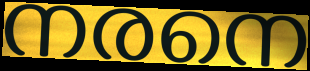
നരനെ